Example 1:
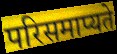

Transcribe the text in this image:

परिसमाप्यते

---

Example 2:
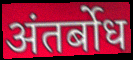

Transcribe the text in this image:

अंतर्बोध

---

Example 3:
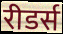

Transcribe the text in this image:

रीडर्स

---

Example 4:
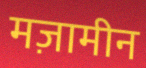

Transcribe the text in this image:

मज़ामीन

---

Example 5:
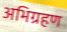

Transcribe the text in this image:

अभिग्रहण